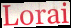
Lorai